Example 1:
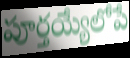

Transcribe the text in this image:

పూర్తయ్యేలోపే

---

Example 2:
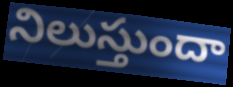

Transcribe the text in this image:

నిలుస్తుందా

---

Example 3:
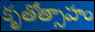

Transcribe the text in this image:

కృతోత్సాహం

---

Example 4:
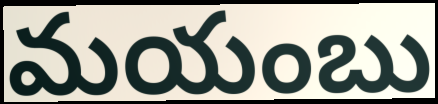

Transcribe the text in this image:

మయంబు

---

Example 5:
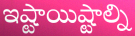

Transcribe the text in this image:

ఇష్టాయిష్టాల్ని